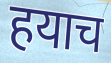
हयाच